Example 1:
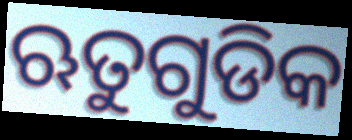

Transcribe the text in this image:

ଋତୁଗୁଡିକ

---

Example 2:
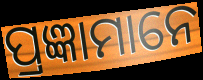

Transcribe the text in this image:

ପ୍ରଜ୍ଞାମାନେ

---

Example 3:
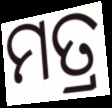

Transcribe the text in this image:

ମତ୍ର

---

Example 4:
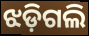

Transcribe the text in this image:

ଝଡ଼ିଗଲି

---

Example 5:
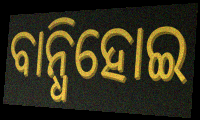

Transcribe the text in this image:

ବାନ୍ଧିହୋଇ